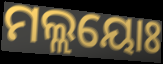
ମଲ୍ଲୟୋଃ